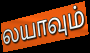
லயாவும்